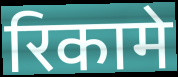
रिकामे